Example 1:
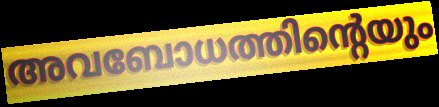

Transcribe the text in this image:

അവബോധത്തിന്റെയും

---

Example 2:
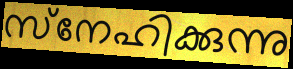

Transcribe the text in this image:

സ്‌നേഹിക്കുന്നു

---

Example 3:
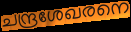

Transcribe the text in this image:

ചന്ദ്രശേഖരനെ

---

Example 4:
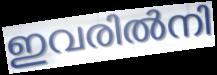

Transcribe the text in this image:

ഇവരിൽനി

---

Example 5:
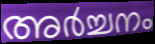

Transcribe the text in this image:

അർച്ചനം